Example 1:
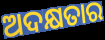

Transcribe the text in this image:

ଅଦକ୍ଷତାର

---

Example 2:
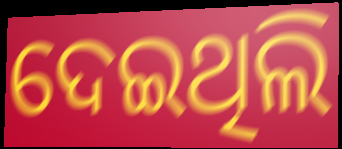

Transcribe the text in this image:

ଦେଇଥିଲି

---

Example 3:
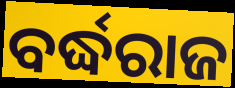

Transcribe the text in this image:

ବର୍ଦ୍ଧରାଜ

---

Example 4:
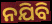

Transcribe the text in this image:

ନଯିବି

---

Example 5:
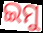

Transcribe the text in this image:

ଇମୁ